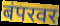
बंपरवर